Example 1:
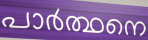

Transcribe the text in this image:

പാർത്ഥനെ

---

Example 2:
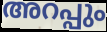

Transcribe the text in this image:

അറപ്പും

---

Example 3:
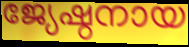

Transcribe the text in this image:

ജ്യേഷ്ഠനായ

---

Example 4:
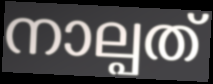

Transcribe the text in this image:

നാല്പത്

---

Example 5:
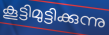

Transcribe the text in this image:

കൂട്ടിമുട്ടിക്കുന്നു